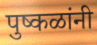
पुष्कळांनी